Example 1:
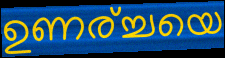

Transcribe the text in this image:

ഉണര്ച്ചയെ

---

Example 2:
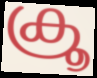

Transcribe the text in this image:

ക്രൂ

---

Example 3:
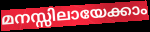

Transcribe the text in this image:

മനസ്സിലായേക്കാം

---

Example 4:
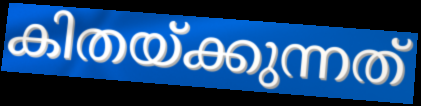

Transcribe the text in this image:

കിതയ്ക്കുന്നത്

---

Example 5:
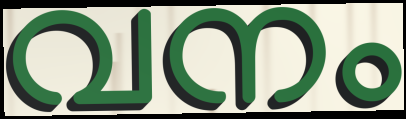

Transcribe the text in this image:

വനം